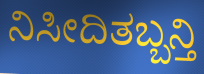
ನಿಸೀದಿತಬ್ಬನ್ತಿ